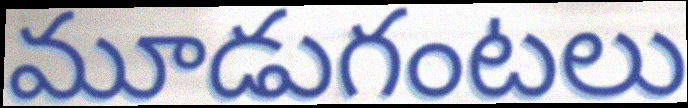
మూడుగంటలు